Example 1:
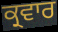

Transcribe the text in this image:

ਕ੍ਰਵਾਰ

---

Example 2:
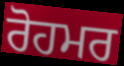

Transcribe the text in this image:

ਰੋਹਮਰ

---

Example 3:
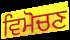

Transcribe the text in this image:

ਵਿਮੋਚਣ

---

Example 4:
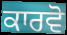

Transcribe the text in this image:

ਕਾਰਵੋ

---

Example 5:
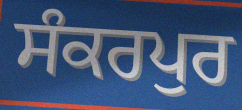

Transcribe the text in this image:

ਸੰਕਰਪੁਰ